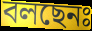
বলছেনঃ